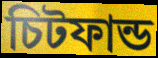
চিটফান্ড